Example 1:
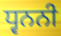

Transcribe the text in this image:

ਧ੍ਵਨਨੀ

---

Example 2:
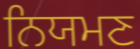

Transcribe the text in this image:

ਨਿਯਮਣ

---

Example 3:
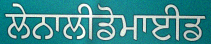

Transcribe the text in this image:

ਲੇਨਾਲੀਡੋਮਾਈਡ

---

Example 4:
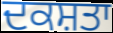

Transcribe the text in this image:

ਦਕਸ਼ਤਾ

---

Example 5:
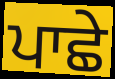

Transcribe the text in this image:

ਪਾਛੇ